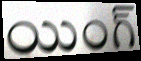
యింగ్